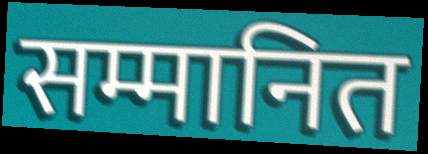
सम्मानित